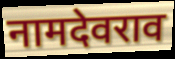
नामदेवराव